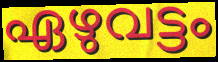
ഏഴുവട്ടം